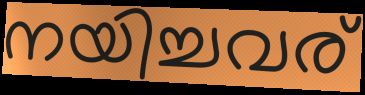
നയിച്ചവര്